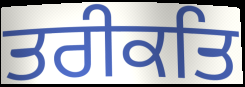
ਤਰੀਕਤਿ